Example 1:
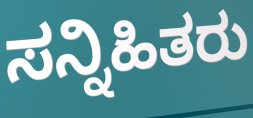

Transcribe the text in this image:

ಸನ್ನಿಹಿತರು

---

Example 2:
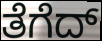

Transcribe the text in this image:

ತೆಗೆದ್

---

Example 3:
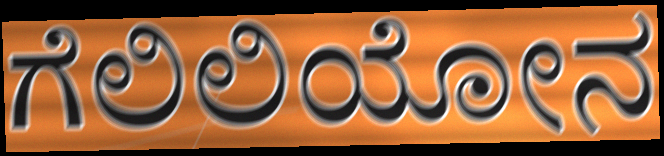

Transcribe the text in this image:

ಗೆಲಿಲಿಯೋನ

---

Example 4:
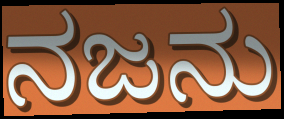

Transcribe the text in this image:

ನಜನು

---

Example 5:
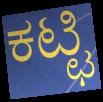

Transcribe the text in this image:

ಕಟ್ಟಿ